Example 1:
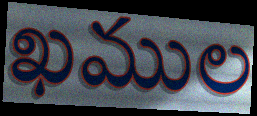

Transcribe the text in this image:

ఖముల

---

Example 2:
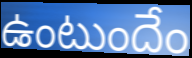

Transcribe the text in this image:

ఉంటుందేం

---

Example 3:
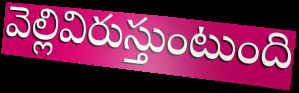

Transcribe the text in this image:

వెల్లివిరుస్తుంటుంది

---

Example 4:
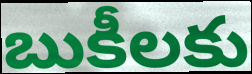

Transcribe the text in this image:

బుకీలకు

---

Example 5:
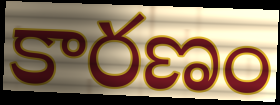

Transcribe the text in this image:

కారణం